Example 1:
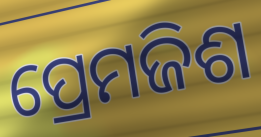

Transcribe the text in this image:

ପ୍ରେମଜିଶ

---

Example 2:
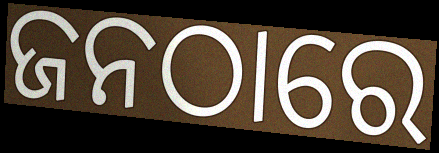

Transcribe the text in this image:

ଜନଠାରେ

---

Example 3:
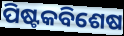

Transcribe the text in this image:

ପିଷ୍ଟକବିଶେଷ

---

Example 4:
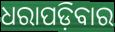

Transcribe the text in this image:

ଧରାପଡ଼ିବାର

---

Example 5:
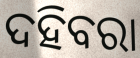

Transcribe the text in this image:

ଦହିବରା